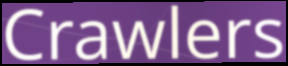
Crawlers